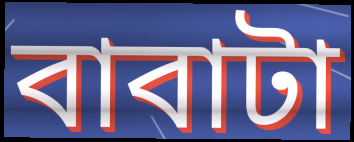
বাবাটা